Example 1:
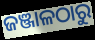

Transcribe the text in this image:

ଜଞ୍ଜାଳଠାରୁ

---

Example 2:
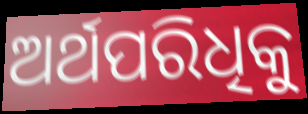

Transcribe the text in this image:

ଅର୍ଥପରିଧିକୁ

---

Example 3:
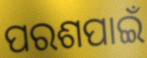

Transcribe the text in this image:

ପରଶପାଇଁ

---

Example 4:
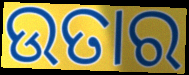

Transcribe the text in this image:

ଉତାର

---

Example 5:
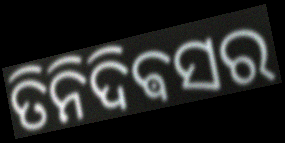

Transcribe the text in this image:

ତିନିଦିଵସର